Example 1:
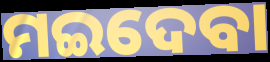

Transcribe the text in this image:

ମଇଦେବା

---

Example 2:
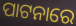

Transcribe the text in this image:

ପାଟନାରେ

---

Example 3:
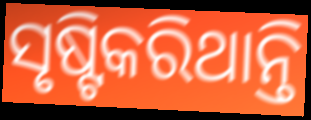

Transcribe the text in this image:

ସୃଷ୍ଟିକରିଥାନ୍ତି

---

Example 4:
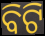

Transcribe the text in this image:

ବିଟି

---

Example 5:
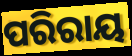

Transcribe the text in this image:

ପରିରାୟ